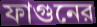
ফাগুনের